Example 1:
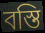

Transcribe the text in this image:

বস্তি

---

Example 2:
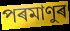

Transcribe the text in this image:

পৰমাণুৰ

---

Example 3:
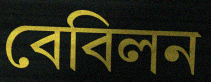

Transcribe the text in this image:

বেবিলন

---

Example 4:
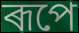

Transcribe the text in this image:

ৰূপে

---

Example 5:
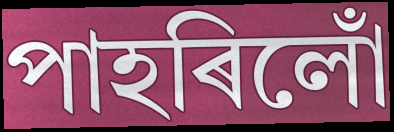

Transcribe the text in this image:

পাহৰিলোঁ